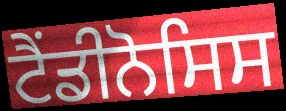
ਟੈਂਡੀਨੋਸਿਸ